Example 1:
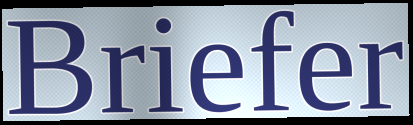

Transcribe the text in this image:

Briefer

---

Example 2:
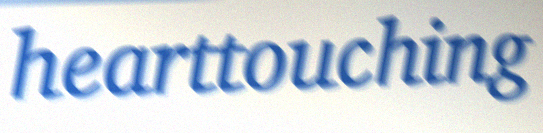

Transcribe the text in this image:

hearttouching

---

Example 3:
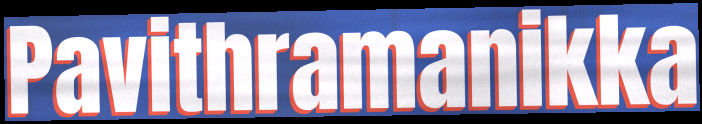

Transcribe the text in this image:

Pavithramanikka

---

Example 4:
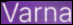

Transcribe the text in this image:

Varna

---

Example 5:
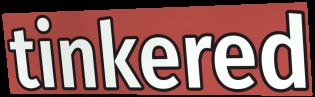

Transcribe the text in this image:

tinkered